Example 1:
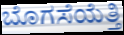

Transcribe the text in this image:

ಬೊಗಸೆಯೆತ್ತಿ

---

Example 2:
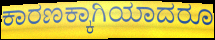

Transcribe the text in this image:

ಕಾರಣಕ್ಕಾಗಿಯಾದರೂ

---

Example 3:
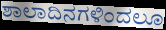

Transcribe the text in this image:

ಶಾಲಾದಿನಗಳಿಂದಲೂ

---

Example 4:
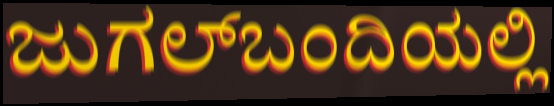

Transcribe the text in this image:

ಜುಗಲ್‌ಬಂದಿಯಲ್ಲಿ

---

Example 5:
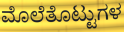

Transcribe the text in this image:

ಮೊಲೆತೊಟ್ಟುಗಳ